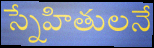
స్నేహితులనే